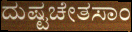
ದುಷ್ಟಚೇತಸಾಂ